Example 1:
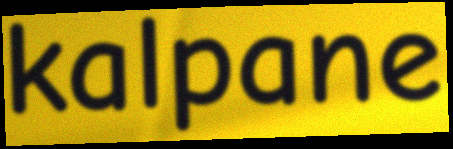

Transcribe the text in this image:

kalpane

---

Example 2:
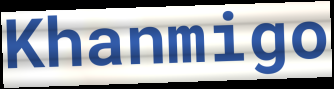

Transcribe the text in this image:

Khanmigo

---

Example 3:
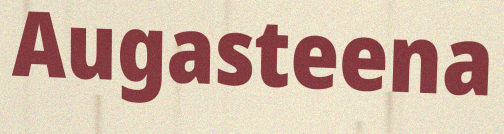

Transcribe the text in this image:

Augasteena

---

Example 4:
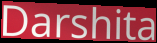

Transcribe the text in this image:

Darshita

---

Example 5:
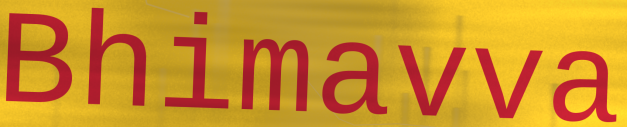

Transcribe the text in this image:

Bhimavva